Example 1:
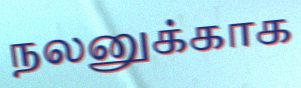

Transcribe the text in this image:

நலனுக்காக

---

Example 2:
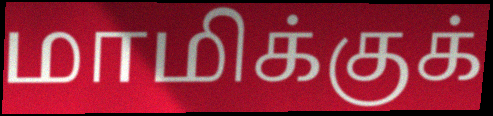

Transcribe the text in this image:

மாமிக்குக்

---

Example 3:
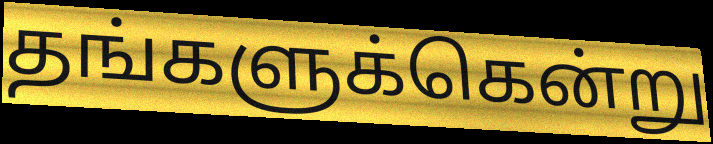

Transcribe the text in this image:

தங்களுக்கென்று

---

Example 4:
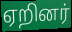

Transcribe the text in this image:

ஏறினர்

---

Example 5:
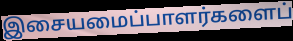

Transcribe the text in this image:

இசையமைப்பாளர்களைப்